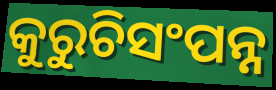
କୁରୁଚିସଂପନ୍ନ